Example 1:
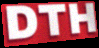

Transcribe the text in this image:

DTH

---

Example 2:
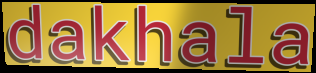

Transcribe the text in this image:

dakhala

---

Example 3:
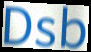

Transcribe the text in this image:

Dsb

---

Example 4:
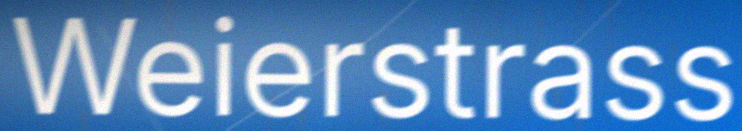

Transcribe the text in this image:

Weierstrass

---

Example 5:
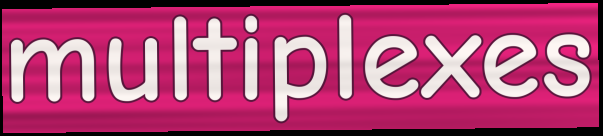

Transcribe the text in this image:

multiplexes